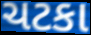
ચટકા